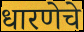
धारणेचे